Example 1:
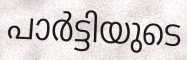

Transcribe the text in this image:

പാർട്ടിയുടെ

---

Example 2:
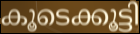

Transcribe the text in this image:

കൂടെക്കൂട്ടി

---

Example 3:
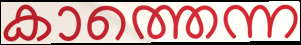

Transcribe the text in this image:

കാത്തെന്ന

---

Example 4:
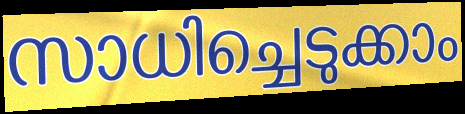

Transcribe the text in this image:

സാധിച്ചെടുക്കാം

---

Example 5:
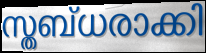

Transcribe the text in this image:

സ്തബ്ധരാക്കി